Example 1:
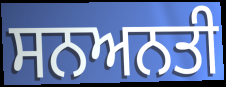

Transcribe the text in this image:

ਸਨਅਨਤੀ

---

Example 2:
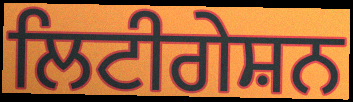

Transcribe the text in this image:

ਲਿਟੀਗੇਸ਼ਨ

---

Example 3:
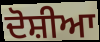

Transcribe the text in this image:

ਦੋਸ਼ੀਆ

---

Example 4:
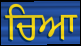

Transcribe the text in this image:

ਚਿਆ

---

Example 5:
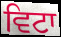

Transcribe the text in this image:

ਵਿਟਾ